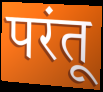
परंतू